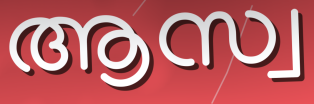
ആസ്വ